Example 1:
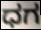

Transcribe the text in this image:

ಧಗ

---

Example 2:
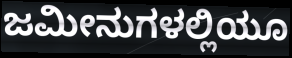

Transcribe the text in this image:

ಜಮೀನುಗಳಲ್ಲಿಯೂ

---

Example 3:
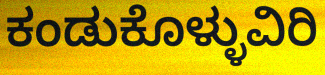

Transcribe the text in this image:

ಕಂಡುಕೊಳ್ಳುವಿರಿ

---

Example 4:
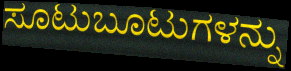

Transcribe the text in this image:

ಸೂಟುಬೂಟುಗಳನ್ನು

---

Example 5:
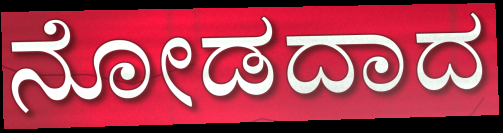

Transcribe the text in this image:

ನೋಡದಾದ